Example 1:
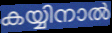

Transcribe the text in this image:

കയ്യിനാൽ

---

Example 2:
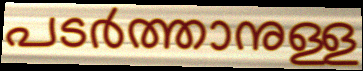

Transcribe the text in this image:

പടർത്താനുള്ള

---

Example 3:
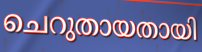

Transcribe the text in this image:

ചെറുതായതായി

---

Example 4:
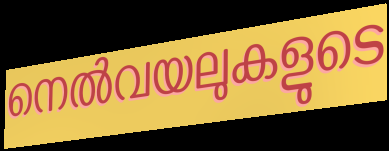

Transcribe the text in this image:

നെൽവയലുകളുടെ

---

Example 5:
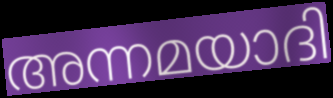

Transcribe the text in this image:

അന്നമയാദി